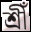
শ্ৰীঁ